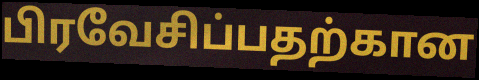
பிரவேசிப்பதற்கான